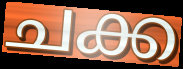
ചക്ക